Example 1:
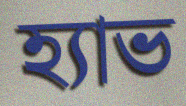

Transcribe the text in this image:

হ্যাভ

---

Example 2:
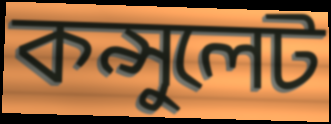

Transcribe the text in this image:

কন্সুলেট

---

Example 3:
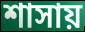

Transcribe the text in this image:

শাসায়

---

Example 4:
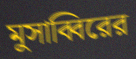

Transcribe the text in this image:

মুসাব্বিরের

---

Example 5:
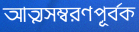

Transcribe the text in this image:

আত্মসম্বরণপূর্বক